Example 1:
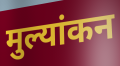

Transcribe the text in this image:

मुल्यांकन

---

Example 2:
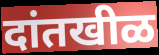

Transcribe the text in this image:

दांतखीळ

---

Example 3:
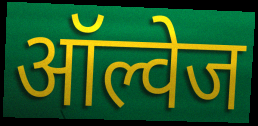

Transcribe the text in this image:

ऑल्वेज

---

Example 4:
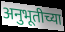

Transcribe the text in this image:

अनुभूतीच्या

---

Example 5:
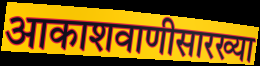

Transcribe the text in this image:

आकाशवाणीसारख्या